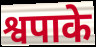
श्वपाके